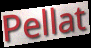
Pellat